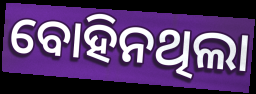
ବୋହିନଥିଲା